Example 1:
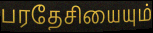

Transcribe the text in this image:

பரதேசியையும்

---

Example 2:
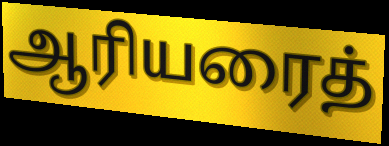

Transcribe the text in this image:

ஆரியரைத்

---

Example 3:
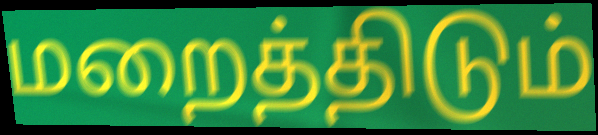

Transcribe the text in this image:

மறைத்திடும்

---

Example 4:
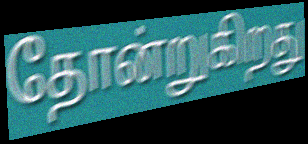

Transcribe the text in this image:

தோன்றுகிறது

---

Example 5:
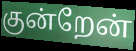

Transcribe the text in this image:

குன்றேன்